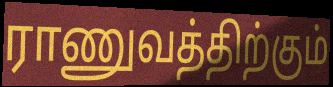
ராணுவத்திற்கும்